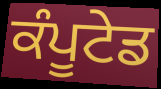
ਕੰਪੂਟੇਡ